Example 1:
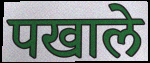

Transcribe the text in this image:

पखाले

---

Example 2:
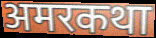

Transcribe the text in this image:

अमरकथा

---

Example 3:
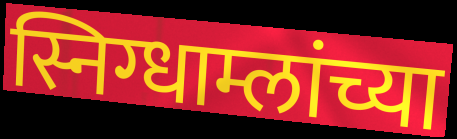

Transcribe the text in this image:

स्निग्धाम्लांच्या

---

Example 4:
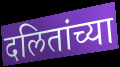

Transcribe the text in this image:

दलितांच्या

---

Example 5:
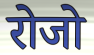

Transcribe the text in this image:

रोजो